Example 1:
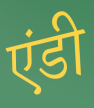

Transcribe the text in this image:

एंडी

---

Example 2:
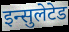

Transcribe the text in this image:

इन्सुलेटेड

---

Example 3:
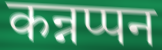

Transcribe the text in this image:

कन्नप्पन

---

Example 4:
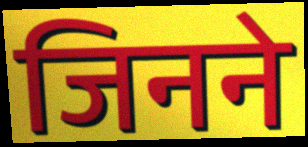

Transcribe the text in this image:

जिनने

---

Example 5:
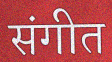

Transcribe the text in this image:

संगीत